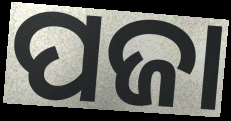
ପଜା